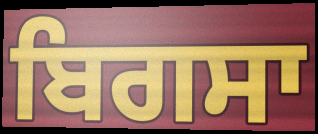
ਬਿਗਸਾ